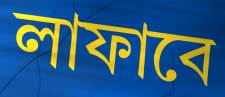
লাফাবে